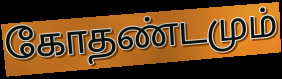
கோதண்டமும்